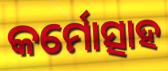
କର୍ମୋତ୍ସାହ